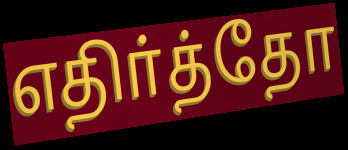
எதிர்த்தோ